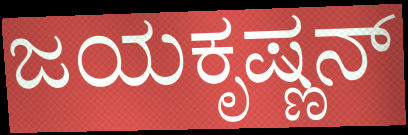
ಜಯಕೃಷ್ಣನ್